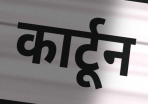
कार्टून